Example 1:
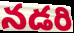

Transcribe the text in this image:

నడరి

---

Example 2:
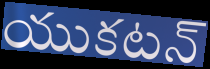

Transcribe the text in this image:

యుకటన్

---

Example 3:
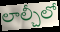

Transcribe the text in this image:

లాల్చీలో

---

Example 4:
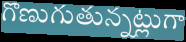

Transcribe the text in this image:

గొణుగుతున్నట్లుగా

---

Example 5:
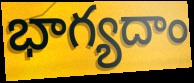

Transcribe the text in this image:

భాగ్యదాం